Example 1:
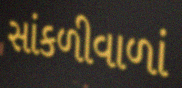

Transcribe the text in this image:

સાંકળીવાળાં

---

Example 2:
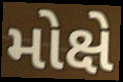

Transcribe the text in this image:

મોક્ષે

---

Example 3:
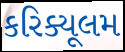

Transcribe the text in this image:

કરિક્યૂલમ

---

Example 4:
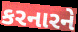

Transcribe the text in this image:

કરનારને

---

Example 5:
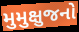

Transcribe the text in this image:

મુમુક્ષુજનો